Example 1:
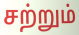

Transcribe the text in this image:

சற்றும்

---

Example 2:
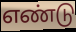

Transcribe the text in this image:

எண்டு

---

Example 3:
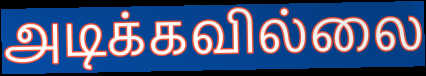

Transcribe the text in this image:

அடிக்கவில்லை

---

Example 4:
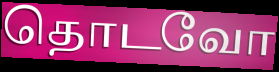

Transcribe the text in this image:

தொடவோ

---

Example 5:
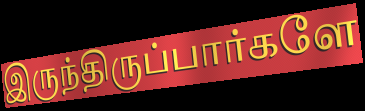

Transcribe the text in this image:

இருந்திருப்பார்களே